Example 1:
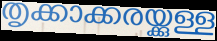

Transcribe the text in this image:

തൃക്കാക്കരയ്ക്കുള്ള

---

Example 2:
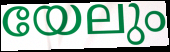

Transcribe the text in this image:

യേലും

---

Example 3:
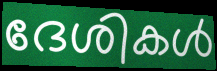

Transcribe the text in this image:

ദേശികൾ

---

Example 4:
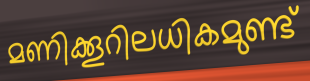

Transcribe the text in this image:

മണിക്കൂറിലധികമുണ്ട്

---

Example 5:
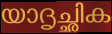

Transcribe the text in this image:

യാദൃച്ഛിക